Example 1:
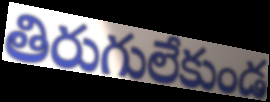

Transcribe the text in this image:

తిరుగులేకుండ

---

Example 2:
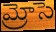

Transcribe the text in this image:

మ్రోసె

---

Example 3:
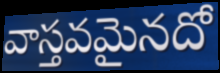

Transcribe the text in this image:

వాస్తవమైనదో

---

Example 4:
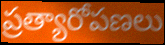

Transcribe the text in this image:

ప్రత్యారోపణలు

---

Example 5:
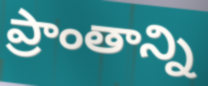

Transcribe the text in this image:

ప్రాంతాన్ని